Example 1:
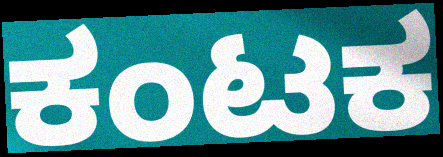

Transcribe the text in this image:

ಕಂಟಕ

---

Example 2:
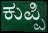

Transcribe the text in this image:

ಕುಪ್ಪಿ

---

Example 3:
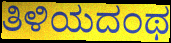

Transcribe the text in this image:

ತಿಳಿಯದಂಥ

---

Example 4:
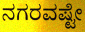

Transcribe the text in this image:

ನಗರವಷ್ಟೇ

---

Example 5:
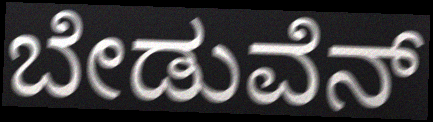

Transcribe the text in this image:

ಬೇಡುವೆನ್